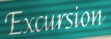
Excursion